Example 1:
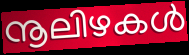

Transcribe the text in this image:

നൂലിഴകൾ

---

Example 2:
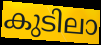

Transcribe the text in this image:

കുടിലാ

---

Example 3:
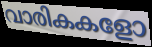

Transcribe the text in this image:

വാരികകളോ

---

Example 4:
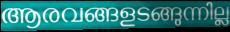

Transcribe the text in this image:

ആരവങ്ങളടങ്ങുന്നില്ല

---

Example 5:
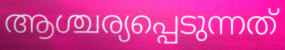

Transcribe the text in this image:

ആശ്ചര്യപ്പെടുന്നത്